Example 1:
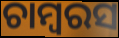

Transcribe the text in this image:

ଚାମ୍ବରସ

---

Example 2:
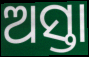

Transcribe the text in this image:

ଅସ୍ତା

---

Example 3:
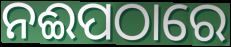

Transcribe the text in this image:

ନଈପଠାରେ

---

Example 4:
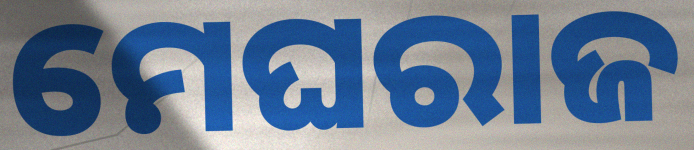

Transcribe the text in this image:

ମେଘରାଜ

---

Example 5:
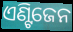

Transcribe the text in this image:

ଏଣ୍ଟିଜେନ